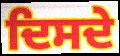
ਦਿਸਦੇ